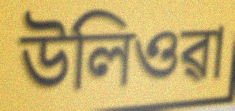
উলিওৱা